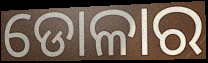
ଡୋଳାର